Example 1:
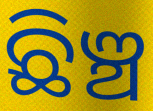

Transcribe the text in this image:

ଛିଞ୍ଚ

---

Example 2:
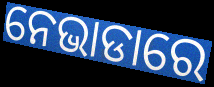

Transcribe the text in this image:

ନେଭାଡାରେ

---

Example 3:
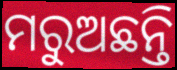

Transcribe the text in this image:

ମରୁଅଛନ୍ତି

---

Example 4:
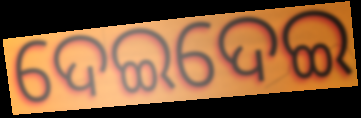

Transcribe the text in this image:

ଦେଇଦେଇ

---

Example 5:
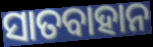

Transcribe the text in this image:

ସାତବାହାନ